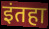
इंतहा